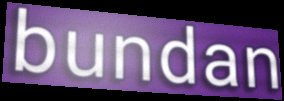
bundan